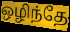
ஒழிந்தே